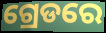
ଗ୍ରେଡରେ